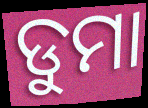
ଡୁମା